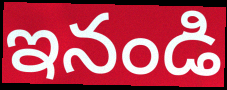
ఇనండి